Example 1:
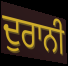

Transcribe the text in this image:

ਦੁਰਾਨੀ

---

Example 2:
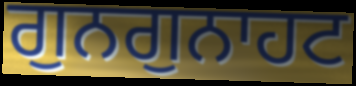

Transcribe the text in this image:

ਗੁਨਗੁਨਾਹਟ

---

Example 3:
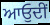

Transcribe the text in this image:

ਆਓੁਦੀਂ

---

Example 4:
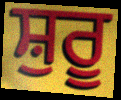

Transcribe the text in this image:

ਸ਼ੁਰੂ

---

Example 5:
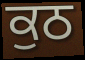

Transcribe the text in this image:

ਕੁਠ